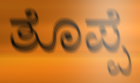
ತೊಪ್ಪೆ